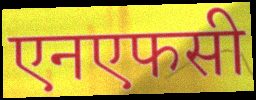
एनएफसी